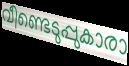
വീണ്ടെടുപ്പുകാരാ